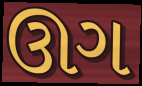
ઊગ